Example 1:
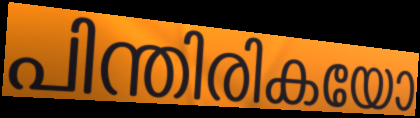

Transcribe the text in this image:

പിന്തിരികയോ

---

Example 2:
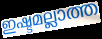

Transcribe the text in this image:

ഇഷ്ടമല്ലാത്ത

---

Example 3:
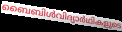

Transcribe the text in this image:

ബൈബിൾവിദ്യാർഥികളുടെ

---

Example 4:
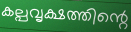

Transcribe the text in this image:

കല്പവൃക്ഷത്തിന്റെ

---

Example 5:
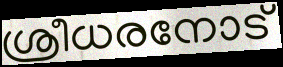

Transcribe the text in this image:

ശ്രീധരനോട്